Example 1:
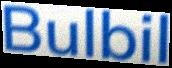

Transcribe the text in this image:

Bulbil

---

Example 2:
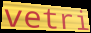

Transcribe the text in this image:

vetri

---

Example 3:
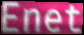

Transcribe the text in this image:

Enet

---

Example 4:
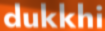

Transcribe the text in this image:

dukkhi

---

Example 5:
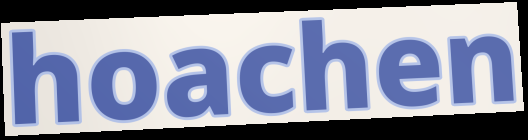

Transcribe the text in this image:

hoachen